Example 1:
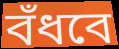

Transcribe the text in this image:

বঁধবে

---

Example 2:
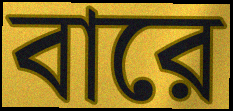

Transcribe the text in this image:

বারে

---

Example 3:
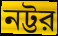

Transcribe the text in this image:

নট্টর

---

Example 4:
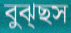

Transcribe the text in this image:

বুঝ্ছস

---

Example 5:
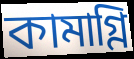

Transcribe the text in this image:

কামাগ্নি